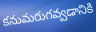
కనుమరుగవ్వడానికి